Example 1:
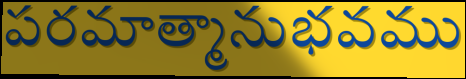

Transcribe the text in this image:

పరమాత్మానుభవము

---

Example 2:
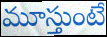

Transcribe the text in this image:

మూస్తుంటే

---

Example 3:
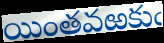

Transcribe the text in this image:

యింతవఱకుఁ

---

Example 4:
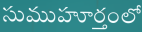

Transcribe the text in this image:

సుముహూర్తంలో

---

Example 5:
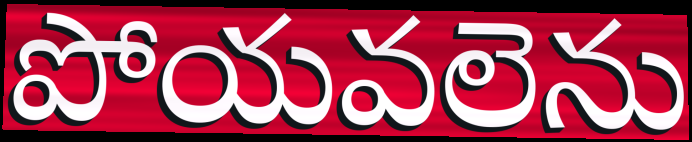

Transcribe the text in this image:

పోయవలెను